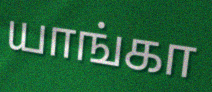
யாங்கா